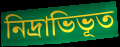
নিদ্রাভিভূত